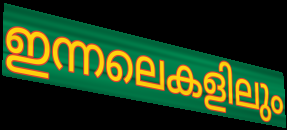
ഇന്നലെകളിലും